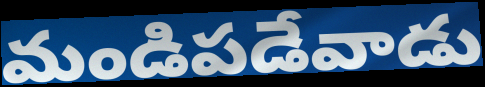
మండిపడేవాడు